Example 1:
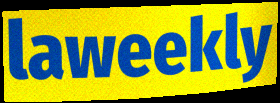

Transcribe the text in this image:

laweekly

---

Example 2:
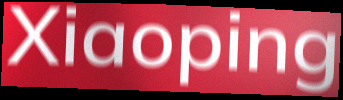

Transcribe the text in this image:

Xiaoping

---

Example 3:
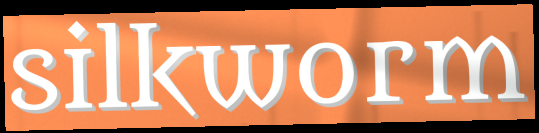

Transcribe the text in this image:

silkworm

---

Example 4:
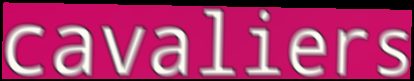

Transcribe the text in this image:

cavaliers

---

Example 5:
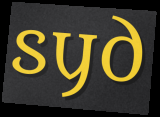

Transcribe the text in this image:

syd